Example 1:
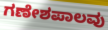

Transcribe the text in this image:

ಗಣೇಶಪಾಲವು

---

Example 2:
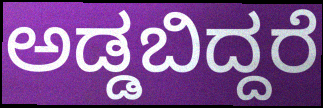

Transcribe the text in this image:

ಅಡ್ಡಬಿದ್ದರೆ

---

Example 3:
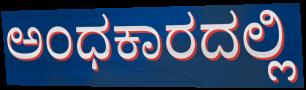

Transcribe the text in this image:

ಅಂಧಕಾರದಲ್ಲಿ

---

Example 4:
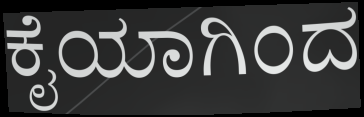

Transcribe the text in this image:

ಕೈಯಾಗಿಂದ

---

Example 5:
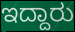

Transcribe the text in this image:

ಇದ್ದಾರು